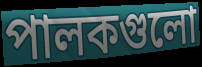
পালকগুলো